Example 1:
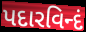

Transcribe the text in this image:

પદારવિન્દં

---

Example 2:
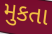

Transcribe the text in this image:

મુકતા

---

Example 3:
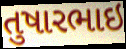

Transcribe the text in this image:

તુષારભાઇ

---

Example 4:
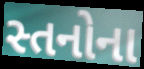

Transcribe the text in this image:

સ્તનોના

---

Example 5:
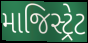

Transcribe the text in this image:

માજિસ્ટ્રેટ